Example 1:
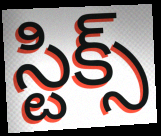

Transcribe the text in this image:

స్టిక్స్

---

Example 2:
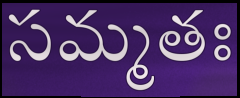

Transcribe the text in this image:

సమ్మతః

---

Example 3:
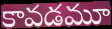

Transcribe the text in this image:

కావడమూ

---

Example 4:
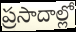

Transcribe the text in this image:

ప్రసాదాల్లో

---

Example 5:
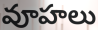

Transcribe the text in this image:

వూహలు